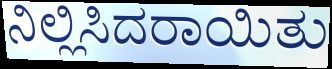
ನಿಲ್ಲಿಸಿದರಾಯಿತು